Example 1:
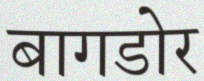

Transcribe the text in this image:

बागडोर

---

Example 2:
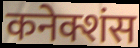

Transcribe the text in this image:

कनेक्शंस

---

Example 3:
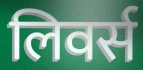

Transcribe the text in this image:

लिवर्स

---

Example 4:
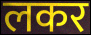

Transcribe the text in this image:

लकर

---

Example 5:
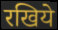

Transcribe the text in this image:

रखिये